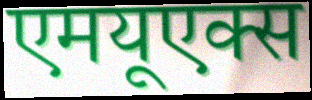
एमयूएक्स